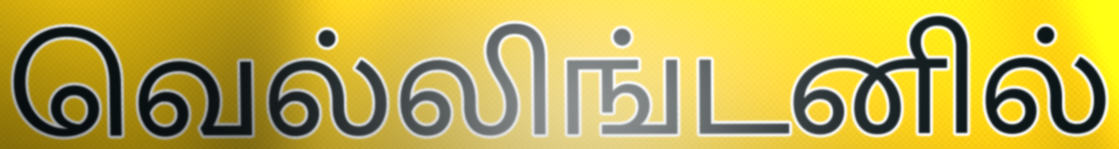
வெல்லிங்டனில்